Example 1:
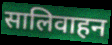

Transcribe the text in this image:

सालिवाहन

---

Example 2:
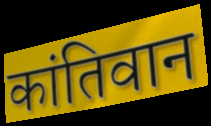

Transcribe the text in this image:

कांतिवान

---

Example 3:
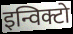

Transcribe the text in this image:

इन्विक्टो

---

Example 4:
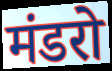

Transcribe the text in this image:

मंडरो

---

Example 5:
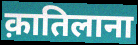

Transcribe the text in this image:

क़ातिलाना